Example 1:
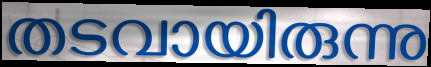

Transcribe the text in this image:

തടവായിരുന്നു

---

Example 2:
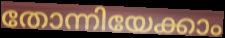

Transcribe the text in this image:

തോന്നിയേക്കാം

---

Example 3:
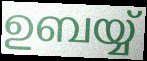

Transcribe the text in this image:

ഉബയ്യ്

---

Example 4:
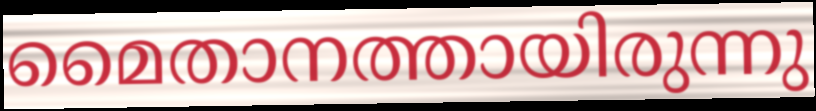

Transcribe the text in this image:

മൈതാനത്തായിരുന്നു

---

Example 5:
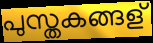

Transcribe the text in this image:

പുസ്തകങ്ങള്